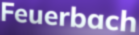
Feuerbach